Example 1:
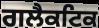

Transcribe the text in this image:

ਗਲੈਕਟਿਕ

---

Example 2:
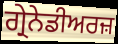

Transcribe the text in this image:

ਗ੍ਰੇਨੇਡੀਅਰਜ਼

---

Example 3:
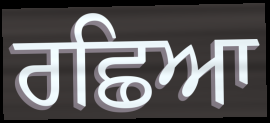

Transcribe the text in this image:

ਰਛਿਆ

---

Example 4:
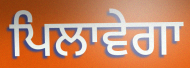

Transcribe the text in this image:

ਪਿਲਾਵੇਗਾ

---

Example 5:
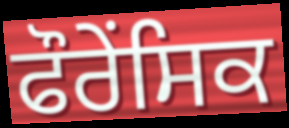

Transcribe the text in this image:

ਫੌਰੇਂਸਿਕ